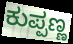
ಕುಪ್ಪಣ್ಣ